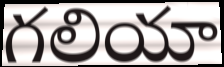
గలియా